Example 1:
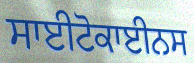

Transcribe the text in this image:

ਸਾਈਟੋਕਾਈਨਸ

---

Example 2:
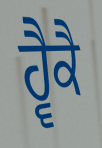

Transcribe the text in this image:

ਹ੍ਵੈਕੈ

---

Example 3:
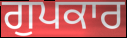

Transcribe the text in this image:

ਗੁਪਕਾਰ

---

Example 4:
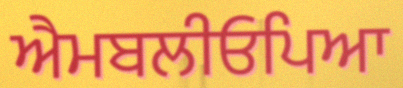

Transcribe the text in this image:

ਐਮਬਲੀਓਪਿਆ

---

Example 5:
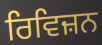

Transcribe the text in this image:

ਰਿਵਿਜ਼ਨ